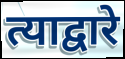
त्याद्वारे